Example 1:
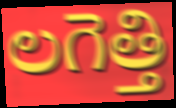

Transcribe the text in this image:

లగెత్తి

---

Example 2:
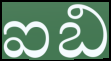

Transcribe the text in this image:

ఐబి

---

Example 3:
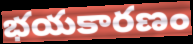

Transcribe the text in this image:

భయకారణం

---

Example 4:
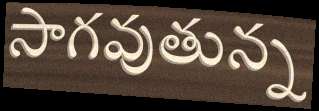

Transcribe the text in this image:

సాగవుతున్న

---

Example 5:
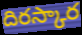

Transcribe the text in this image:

దిరస్కార